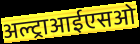
अल्ट्राआईएसओ